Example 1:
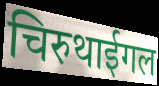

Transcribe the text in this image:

चिरुथाईगल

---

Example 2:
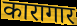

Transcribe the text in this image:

कारागार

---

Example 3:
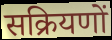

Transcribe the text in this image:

सक्रियणों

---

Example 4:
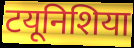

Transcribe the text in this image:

टयूनिशिया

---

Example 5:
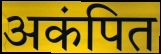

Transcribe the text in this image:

अकंपित